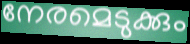
നേരമെടുക്കും